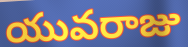
యువరాజు